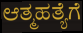
ಆತ್ಮಹತ್ಯೆಗೆ